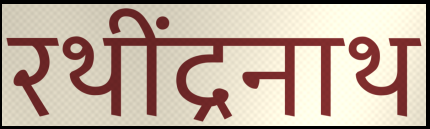
रथींद्रनाथ